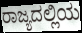
ರಾಜ್ಯದಲ್ಲಿಯ